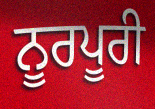
ਨੂਰਪੂਰੀ